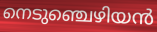
നെടുഞ്ചെഴിയൻ